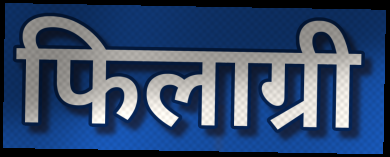
फिलाग्री